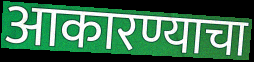
आकारण्याचा